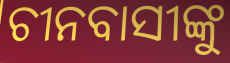
ଚୀନବାସୀଙ୍କୁ